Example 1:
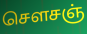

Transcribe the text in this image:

செளசஞ்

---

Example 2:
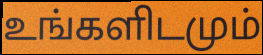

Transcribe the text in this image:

உங்களிடமும்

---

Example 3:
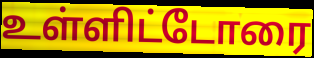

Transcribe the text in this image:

உள்ளிட்டோரை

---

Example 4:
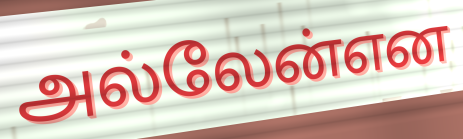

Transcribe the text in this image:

அல்லேன்என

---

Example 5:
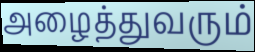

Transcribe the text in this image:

அழைத்துவரும்